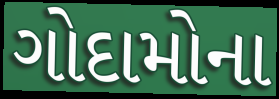
ગોદામોના